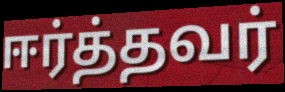
ஈர்த்தவர்